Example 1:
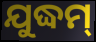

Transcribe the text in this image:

ଯୁଦ୍ଧମ୍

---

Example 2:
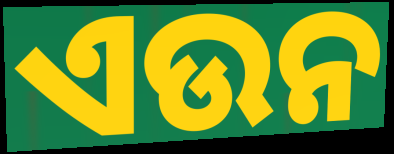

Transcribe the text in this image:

ଏଉନ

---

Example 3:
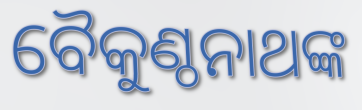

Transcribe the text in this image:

ବୈକୁଣ୍ଠନାଥଙ୍କ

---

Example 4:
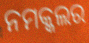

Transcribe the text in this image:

ନମକ୍କଲର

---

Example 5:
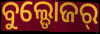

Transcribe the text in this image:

ବୁଲ୍ଡୋଜର୍